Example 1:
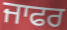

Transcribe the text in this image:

ਜਾਫਰ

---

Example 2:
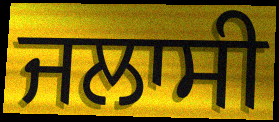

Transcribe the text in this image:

ਜਲਾਸੀ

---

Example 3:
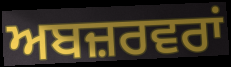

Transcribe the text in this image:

ਅਬਜ਼ਰਵਰਾਂ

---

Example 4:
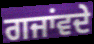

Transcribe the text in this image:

ਗਜਾਂਵਦੇ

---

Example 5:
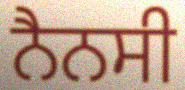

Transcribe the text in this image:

ਨੈਨਸੀ